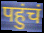
पहुंचं